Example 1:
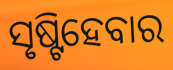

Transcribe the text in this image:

ସୃଷ୍ଟିହେବାର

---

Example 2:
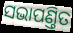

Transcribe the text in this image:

ସଭାପଣ୍ତିତ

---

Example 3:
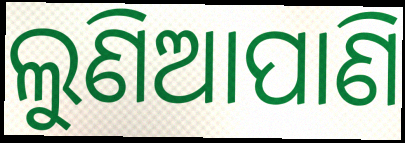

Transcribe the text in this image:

ଲୁଣିଆପାଣି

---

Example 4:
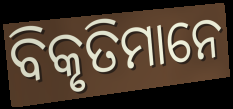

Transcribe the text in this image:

ବିକୃତିମାନେ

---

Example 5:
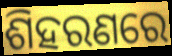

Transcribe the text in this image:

ଶିହରଣରେ